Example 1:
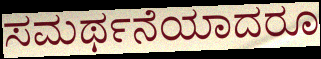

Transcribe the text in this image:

ಸಮರ್ಥನೆಯಾದರೂ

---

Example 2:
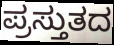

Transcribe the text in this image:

ಪ್ರಸ್ತುತದ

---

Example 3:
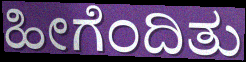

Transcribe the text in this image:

ಹೀಗೆಂದಿತು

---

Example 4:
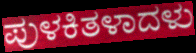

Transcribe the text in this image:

ಪುಳಕಿತಳಾದಳು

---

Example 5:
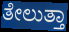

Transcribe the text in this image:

ತೇಲುತ್ತಾ